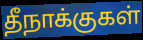
தீநாக்குகள்